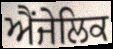
ਐਂਜੇਲਿਕ